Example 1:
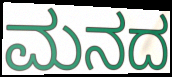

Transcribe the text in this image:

ಮನದ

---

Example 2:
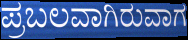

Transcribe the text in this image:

ಪ್ರಬಲವಾಗಿರುವಾಗ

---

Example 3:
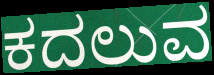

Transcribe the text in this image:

ಕದಲುವ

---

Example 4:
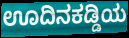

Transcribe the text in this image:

ಊದಿನಕಡ್ಡಿಯ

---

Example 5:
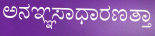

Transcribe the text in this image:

ಅನಞ್ಞಸಾಧಾರಣತ್ತಾ